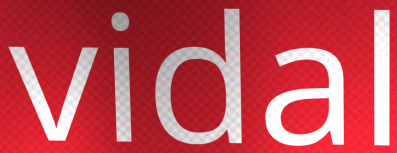
vidal